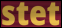
stet